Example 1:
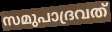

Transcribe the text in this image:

സമുപാദ്രവത്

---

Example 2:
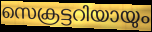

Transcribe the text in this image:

സെക്രട്ടറിയായും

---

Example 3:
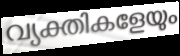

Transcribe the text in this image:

വ്യക്തികളേയും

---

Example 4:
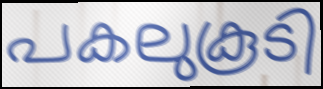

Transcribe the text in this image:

പകലുകൂടി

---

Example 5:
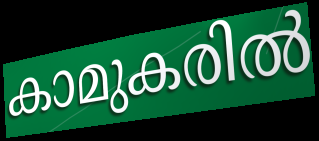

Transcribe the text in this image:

കാമുകരിൽ